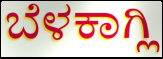
ಬೆಳಕಾಗ್ಲಿ